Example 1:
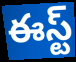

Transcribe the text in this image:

ఈస్ట్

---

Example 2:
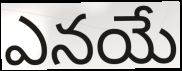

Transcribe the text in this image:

ఎనయే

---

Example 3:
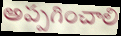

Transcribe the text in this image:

అప్పగించాలి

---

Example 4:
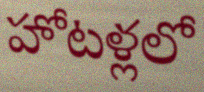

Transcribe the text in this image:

హోటళ్లలో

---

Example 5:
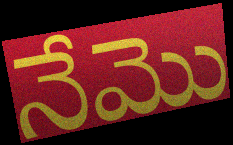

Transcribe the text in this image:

నేమొ